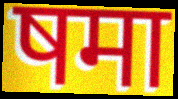
षमा